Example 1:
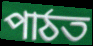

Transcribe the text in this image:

পাঠত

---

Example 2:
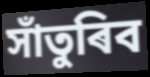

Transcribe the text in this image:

সাঁতুৰিব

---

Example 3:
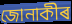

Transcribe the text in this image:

জোনাকীৰ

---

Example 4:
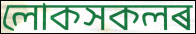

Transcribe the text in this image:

লোকসকলৰ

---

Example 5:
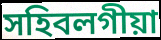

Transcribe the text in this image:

সহিবলগীয়া